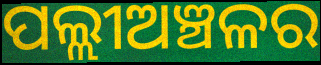
ପଲ୍ଲୀଅଞ୍ଚଳର